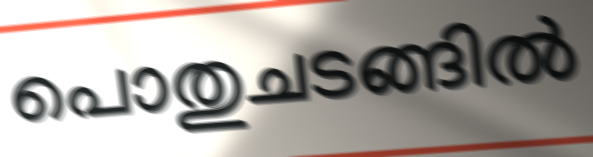
പൊതുചടങ്ങിൽ